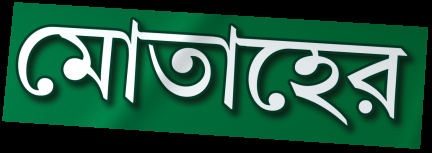
মোতাহের